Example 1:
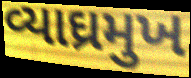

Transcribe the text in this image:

વ્યાઘ્રમુખ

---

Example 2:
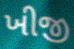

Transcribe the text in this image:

ખીજી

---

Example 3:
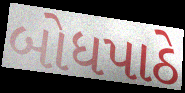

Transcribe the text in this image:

બોધપાઠે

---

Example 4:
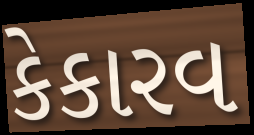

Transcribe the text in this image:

કેકારવ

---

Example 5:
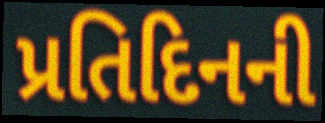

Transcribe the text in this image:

પ્રતિદિનની